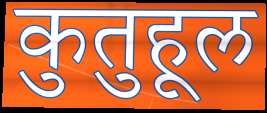
कुतुहूल